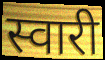
स्वारी